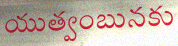
యుత్వంబునకు